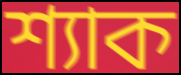
শ্যাক